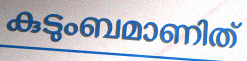
കുടുംബമാണിത്